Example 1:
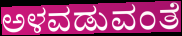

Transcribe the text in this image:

ಅಳವಡುವಂತೆ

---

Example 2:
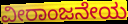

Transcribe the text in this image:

ವೀರಾಂಜನೇಯ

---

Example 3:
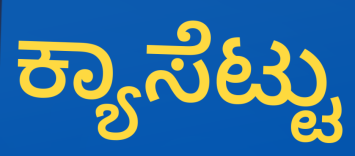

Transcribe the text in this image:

ಕ್ಯಾಸೆಟ್ಟು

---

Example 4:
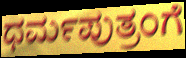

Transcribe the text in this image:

ಧರ್ಮಪುತ್ರಂಗೆ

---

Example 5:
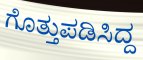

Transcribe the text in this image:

ಗೊತ್ತುಪಡಿಸಿದ್ದ